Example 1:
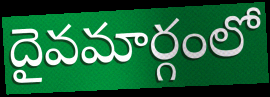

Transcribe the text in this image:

దైవమార్గంలో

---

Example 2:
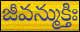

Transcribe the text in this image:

జీవన్ముక్తిః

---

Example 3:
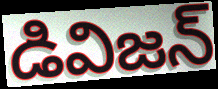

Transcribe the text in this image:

డివిజన్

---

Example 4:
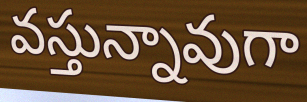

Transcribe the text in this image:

వస్తున్నావుగా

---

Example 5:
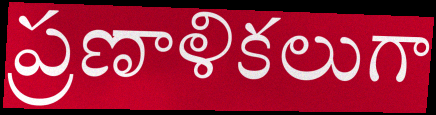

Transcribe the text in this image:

ప్రణాళికలుగా